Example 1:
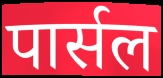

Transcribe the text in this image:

पार्सल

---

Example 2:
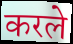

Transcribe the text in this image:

करले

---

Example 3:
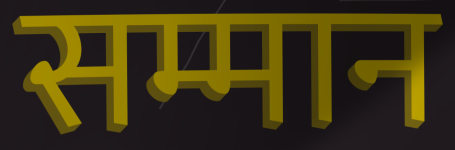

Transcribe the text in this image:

सम्‍मान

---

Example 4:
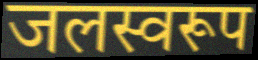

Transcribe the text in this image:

जलस्वरूप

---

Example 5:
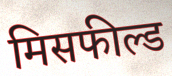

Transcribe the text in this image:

मिसफील्ड